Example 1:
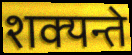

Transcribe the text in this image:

शक्यन्ते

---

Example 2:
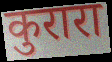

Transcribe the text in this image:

कुरारा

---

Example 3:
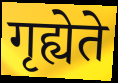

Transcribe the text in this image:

गृह्येते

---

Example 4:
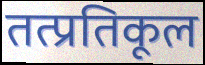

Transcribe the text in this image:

तत्प्रतिकूल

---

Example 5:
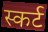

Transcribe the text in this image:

स्कर्ट